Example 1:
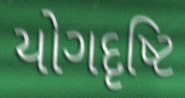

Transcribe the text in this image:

યોગદૃષ્ટિ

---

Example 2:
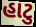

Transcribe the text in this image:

હાટુ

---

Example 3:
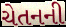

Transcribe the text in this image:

ચેતનની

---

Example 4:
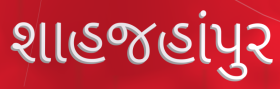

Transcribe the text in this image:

શાહજહાંપુર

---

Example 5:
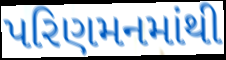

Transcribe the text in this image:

પરિણમનમાંથી